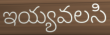
ఇయ్యవలసి